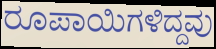
ರೂಪಾಯಿಗಳಿದ್ದವು